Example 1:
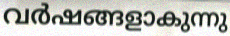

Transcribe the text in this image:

വർഷങ്ങളാകുന്നു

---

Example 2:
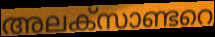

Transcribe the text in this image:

അലക്സാണ്ടറെ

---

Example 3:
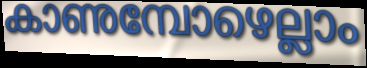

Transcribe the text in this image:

കാണുമ്പോഴെല്ലാം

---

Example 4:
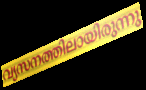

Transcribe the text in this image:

വ്യസനത്തിലായിരുന്നു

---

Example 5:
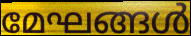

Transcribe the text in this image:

മേഘങ്ങൾ